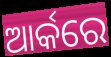
ଆର୍କରେ